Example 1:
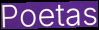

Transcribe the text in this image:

Poetas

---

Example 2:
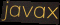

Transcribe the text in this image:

javax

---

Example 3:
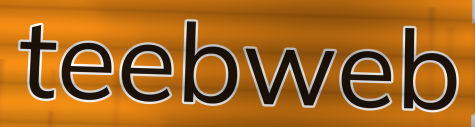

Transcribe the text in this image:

teebweb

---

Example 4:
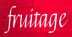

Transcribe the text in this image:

fruitage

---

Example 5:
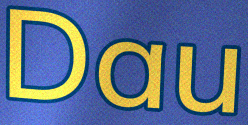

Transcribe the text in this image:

Dau